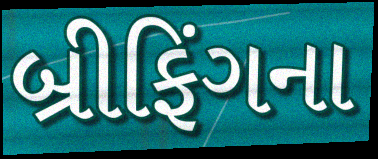
બ્રીફિંગના